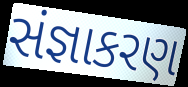
સંજ્ઞાકરણ